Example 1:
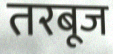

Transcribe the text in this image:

तरबूज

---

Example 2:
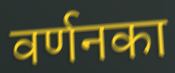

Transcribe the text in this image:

वर्णनका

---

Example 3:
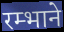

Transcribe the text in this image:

रम्भाने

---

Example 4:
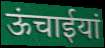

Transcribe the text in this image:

ऊंचाईयां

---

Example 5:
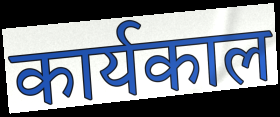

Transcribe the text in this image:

कार्यकाल